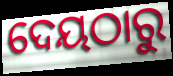
ଦେୟଠାରୁ